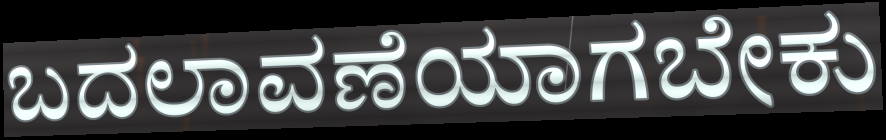
ಬದಲಾವಣೆಯಾಗಬೇಕು